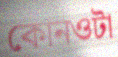
কোনওটা